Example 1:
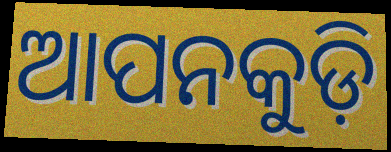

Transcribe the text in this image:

ଆପନକୁଡ଼ି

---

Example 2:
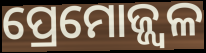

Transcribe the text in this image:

ପ୍ରେମୋଜ୍ଜ୍ୱଳ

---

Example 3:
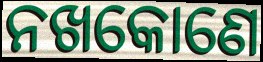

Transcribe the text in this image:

ନଖକୋଣେ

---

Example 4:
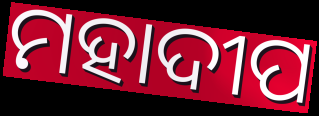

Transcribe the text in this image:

ମହାଦୀପ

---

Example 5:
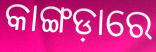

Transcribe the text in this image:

କାଙ୍ଗଡ଼ାରେ